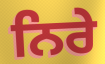
ਨਿਰੇ